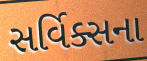
સર્વિક્સના